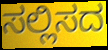
ಸಲ್ಲಿಸದ